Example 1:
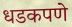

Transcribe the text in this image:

धडकपणे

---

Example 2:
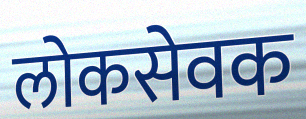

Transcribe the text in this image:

लोकसेवक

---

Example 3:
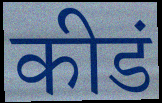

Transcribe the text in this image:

कीडं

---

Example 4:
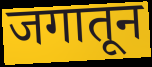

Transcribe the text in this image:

जगातून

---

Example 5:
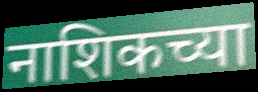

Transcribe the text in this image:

नाशिकच्या